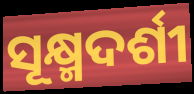
ସୂକ୍ଷ୍ମଦର୍ଶୀ